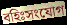
বহিঃসংযোগ